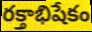
రక్తాభిషేకం